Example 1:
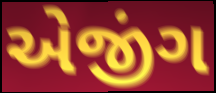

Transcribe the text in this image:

એજીંગ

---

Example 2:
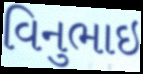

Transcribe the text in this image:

વિનુભાઇ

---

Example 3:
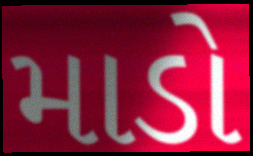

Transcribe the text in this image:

માડો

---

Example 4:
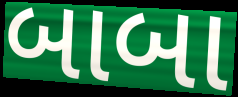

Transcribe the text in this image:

બાબા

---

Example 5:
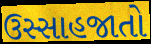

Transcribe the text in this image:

ઉસ્સાહજાતો